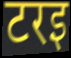
टरइ